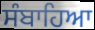
ਸੰਬਾਹਿਆ